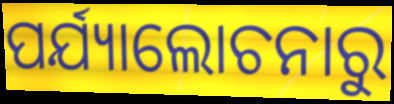
ପର୍ଯ୍ୟାଲୋଚନାରୁ